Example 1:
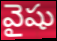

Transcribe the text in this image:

వైషు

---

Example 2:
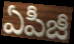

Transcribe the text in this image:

ఏపీజీ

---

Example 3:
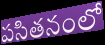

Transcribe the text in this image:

పసితనంలో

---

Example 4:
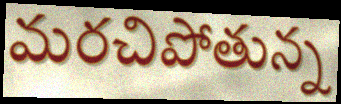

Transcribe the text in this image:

మరచిపోతున్న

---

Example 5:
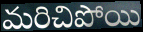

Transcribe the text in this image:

మరిచిపోయి